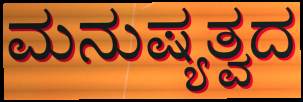
ಮನುಷ್ಯತ್ವದ